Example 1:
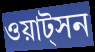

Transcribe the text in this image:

ওয়াট্সন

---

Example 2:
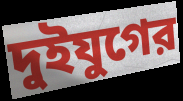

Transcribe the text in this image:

দুইযুগের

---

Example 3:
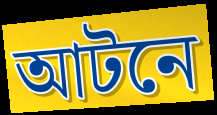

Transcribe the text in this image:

আটনে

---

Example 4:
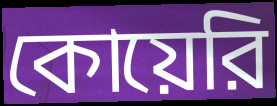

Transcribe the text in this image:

কোয়েরি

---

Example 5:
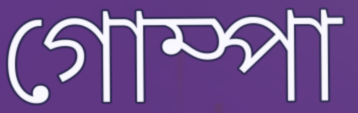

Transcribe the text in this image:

গোম্পা